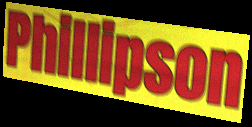
Phillipson